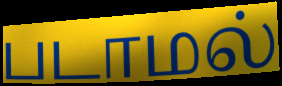
படாமல்